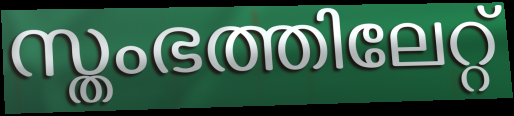
സ്തംഭത്തിലേറ്റ്